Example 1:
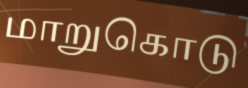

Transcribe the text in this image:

மாறுகொடு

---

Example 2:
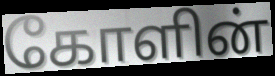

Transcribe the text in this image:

கோளின்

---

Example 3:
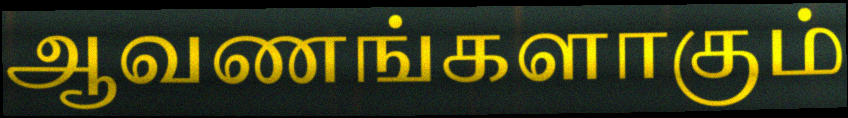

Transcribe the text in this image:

ஆவணங்களாகும்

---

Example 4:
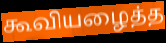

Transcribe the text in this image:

கூவியழைத்த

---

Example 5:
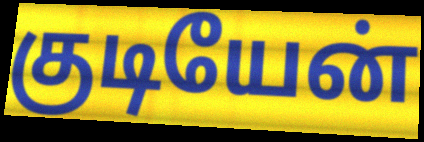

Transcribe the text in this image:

குடியேன்